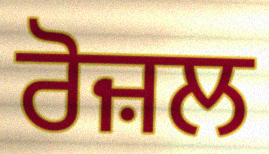
ਰੋਜ਼ਲ